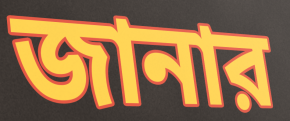
জানার